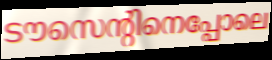
ടൗസെന്റിനെപ്പോലെ